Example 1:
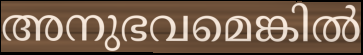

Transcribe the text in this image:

അനുഭവമെങ്കിൽ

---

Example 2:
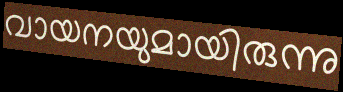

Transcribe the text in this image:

വായനയുമായിരുന്നു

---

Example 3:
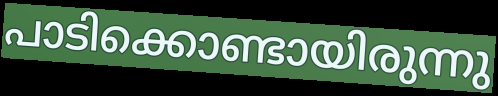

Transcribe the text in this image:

പാടിക്കൊണ്ടായിരുന്നു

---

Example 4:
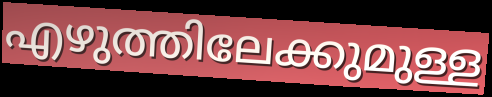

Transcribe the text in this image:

എഴുത്തിലേക്കുമുള്ള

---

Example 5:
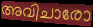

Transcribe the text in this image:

അവിചാരോ